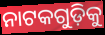
ନାଟକଗୁଡ଼ିକୁ